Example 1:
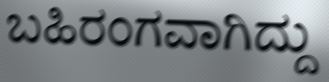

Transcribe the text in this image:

ಬಹಿರಂಗವಾಗಿದ್ದು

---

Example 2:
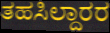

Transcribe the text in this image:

ತಹಸಿಲ್ದಾರರ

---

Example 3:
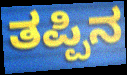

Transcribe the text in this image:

ತಪ್ಪಿನ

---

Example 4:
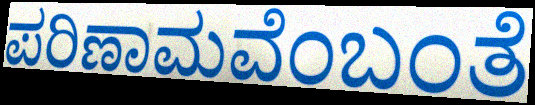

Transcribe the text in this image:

ಪರಿಣಾಮವೆಂಬಂತೆ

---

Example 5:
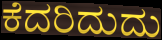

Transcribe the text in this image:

ಕೆದರಿದುದು